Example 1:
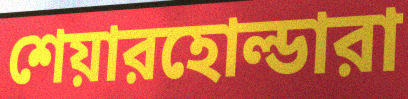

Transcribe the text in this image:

শেয়ারহোল্ডারা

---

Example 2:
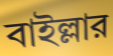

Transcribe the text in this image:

বাইল্লার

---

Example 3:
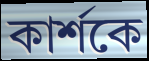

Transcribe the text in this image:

কার্শকে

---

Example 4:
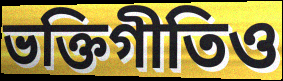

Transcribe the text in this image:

ভক্তিগীতিও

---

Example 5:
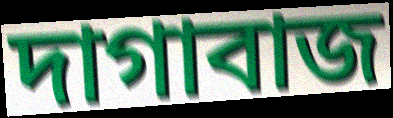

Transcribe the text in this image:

দাগাবাজ